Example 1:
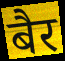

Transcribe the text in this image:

बैर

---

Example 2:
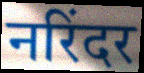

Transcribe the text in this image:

नरिंदर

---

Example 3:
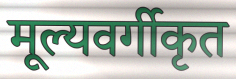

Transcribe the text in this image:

मूल्यवर्गीकृत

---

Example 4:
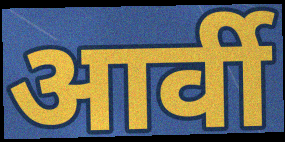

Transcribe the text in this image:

आर्वी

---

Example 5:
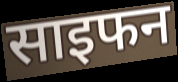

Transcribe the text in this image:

साइफन